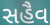
સહૈવ